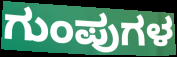
ಗುಂಪುಗಳ